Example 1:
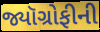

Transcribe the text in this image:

જ્યૉગ્રોફીની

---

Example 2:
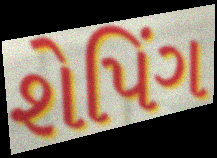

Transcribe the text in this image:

શેપિંગ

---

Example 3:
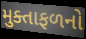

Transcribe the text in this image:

મુક્તાફળનો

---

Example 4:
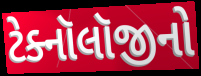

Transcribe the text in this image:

ટેક્નૉલૉજીનો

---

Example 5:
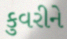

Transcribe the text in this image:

કુવરીને